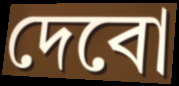
দেবো